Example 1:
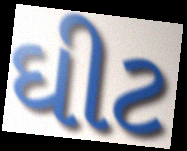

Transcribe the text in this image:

ઘીટ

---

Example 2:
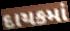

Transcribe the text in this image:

દાયકમાં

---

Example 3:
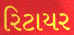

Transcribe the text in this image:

રિટાયર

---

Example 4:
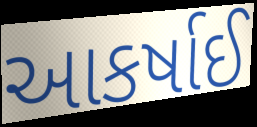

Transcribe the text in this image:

આકર્ષાઈ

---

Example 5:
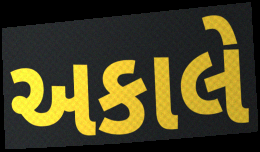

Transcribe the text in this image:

અકાલે